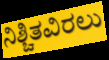
ನಿಶ್ಚಿತವಿರಲು